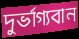
দুর্ভাগ্যবান